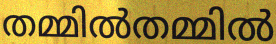
തമ്മിൽതമ്മിൽ